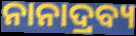
ନାନାଦ୍ରବ୍ୟ